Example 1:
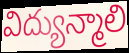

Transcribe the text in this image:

విద్యున్మాలి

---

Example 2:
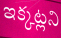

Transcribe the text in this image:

ఇక్కట్లని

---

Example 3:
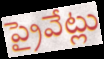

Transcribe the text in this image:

ప్రైవేట్లు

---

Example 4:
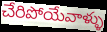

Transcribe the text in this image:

చేరిపోయేవాళ్ళు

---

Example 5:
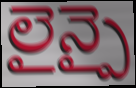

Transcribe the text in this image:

లైన్పై